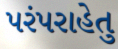
પરંપરાહેતુ